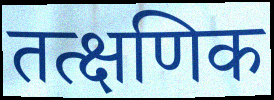
तत्क्षणिक